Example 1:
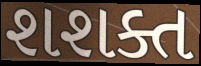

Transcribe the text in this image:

શશક્ત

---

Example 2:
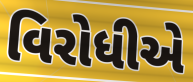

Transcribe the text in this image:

વિરોધીએ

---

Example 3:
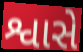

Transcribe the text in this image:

શ્વાસે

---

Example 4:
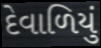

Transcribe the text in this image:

દેવાળિયું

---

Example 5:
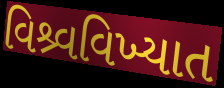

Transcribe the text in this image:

વિશ્ર્વવિખ્યાત